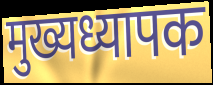
मुख्यध्यापक